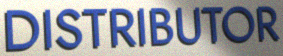
DISTRIBUTOR